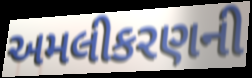
અમલીકરણની